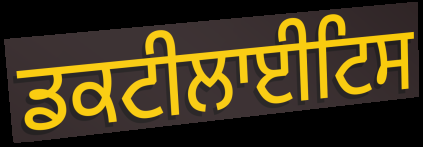
ਡਕਟੀਲਾਈਟਿਸ